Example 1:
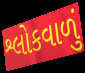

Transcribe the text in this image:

શ્લોકવાળું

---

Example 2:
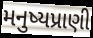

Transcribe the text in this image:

મનુષ્યપ્રાણી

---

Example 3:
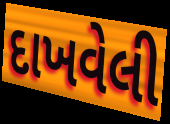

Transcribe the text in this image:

દાખવેલી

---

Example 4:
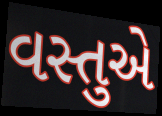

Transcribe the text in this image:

વસ્તુએ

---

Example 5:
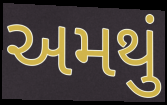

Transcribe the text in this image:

અમથું